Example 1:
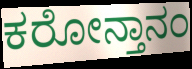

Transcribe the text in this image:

ಕರೋನ್ತಾನಂ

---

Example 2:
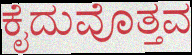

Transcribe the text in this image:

ಕೈದುವೊತ್ತವ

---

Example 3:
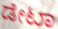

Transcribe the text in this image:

ಡೇಟಾ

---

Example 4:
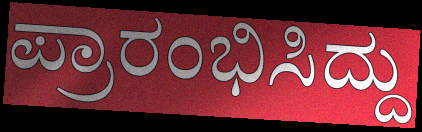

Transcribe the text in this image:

ಪ್ರಾರಂಭಿಸಿದ್ದು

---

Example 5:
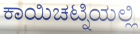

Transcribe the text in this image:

ಕಾಯಿಚಟ್ನಿಯಲ್ಲಿ